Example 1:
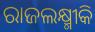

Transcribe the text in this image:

ରାଜଲକ୍ଷ୍ମୀକି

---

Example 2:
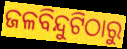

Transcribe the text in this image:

ଜଳବିନ୍ଦୁଟିଠାରୁ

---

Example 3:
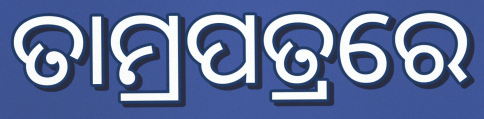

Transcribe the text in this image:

ତାମ୍ରପତ୍ରରେ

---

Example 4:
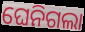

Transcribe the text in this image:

ଘେନିଗଲା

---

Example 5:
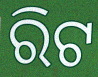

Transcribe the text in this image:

ରିଟ